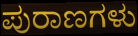
ಪುರಾಣಗಳು